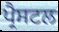
ਪ੍ਰੈਸਟਲ